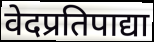
वेदप्रतिपाद्या